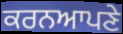
ਕਰਨਆਪਣੇ